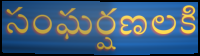
సంఘర్షణలకి